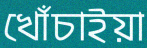
খোঁচাইয়া